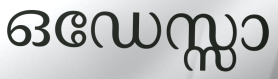
ഒഡേസ്സാ